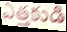
ఎత్తకుడి